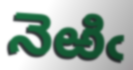
నెఱిఁ